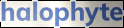
halophyte